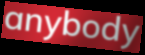
anybody